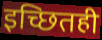
इच्छितही